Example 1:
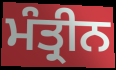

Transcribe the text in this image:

ਮੰਤ੍ਰੀਨ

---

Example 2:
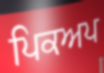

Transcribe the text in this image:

ਪਿਕਅਪ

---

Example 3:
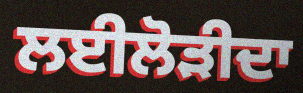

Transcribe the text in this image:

ਲਈਲੋੜੀਦਾ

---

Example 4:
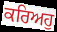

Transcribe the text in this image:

ਕਰਿਅਹੁ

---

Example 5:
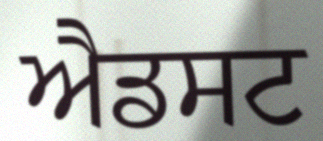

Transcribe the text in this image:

ਐਡਸਟ